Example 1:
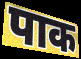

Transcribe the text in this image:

पाक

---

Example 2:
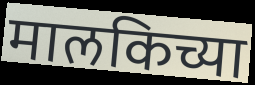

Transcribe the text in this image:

मालकिच्या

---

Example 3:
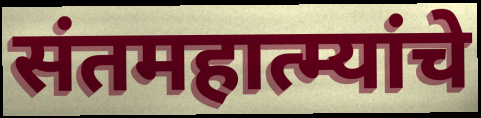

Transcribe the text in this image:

संतमहात्म्यांचे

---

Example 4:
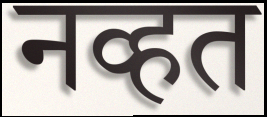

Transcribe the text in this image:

नव्हत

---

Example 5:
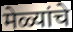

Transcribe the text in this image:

मेळ्यांचे